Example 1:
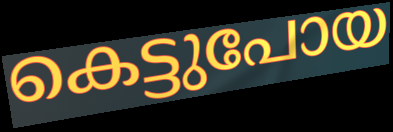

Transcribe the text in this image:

കെട്ടുപോയ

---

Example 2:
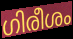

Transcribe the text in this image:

ഗിരീശം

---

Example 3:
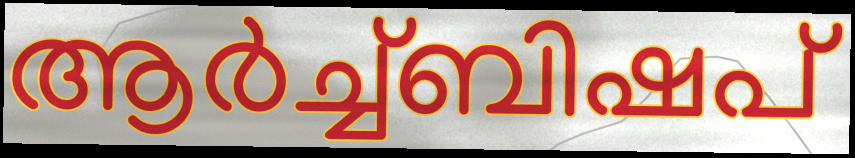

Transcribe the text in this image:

ആർച്ച്ബിഷപ്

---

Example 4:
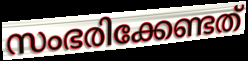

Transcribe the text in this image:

സംഭരിക്കേണ്ടത്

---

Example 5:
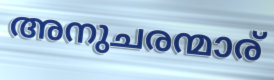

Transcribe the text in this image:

അനുചരന്മാര്